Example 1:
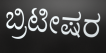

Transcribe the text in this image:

ಬ್ರಿಟೀಷರ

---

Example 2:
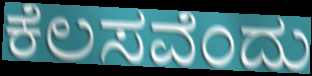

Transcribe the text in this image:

ಕೆಲಸವೆಂದು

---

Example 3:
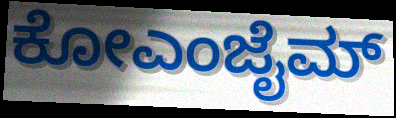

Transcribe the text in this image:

ಕೋಎಂಜೈಮ್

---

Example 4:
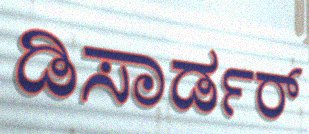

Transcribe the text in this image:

ಡಿಸಾರ್ಡರ್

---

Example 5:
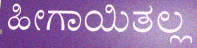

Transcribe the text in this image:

ಹೀಗಾಯಿತಲ್ಲ